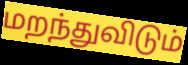
மறந்துவிடும்